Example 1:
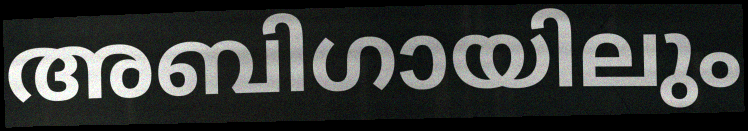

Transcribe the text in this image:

അബിഗായിലും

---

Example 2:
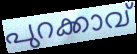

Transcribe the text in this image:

പുറക്കാവ്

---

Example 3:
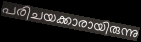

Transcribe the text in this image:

പരിചയക്കാരായിരുന്നു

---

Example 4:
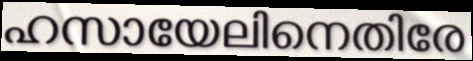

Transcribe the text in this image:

ഹസായേലിനെതിരേ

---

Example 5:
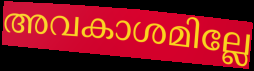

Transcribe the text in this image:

അവകാശമില്ലേ